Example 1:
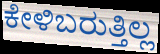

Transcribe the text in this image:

ಕೇಳಿಬರುತ್ತಿಲ್ಲ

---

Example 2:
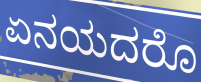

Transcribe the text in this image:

ಏನಯದರೊ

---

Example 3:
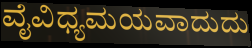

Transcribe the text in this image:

ವೈವಿಧ್ಯಮಯವಾದುದು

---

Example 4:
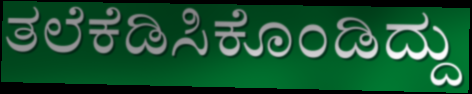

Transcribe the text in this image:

ತಲೆಕೆಡಿಸಿಕೊಂಡಿದ್ದು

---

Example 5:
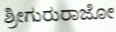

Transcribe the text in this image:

ಶ್ರೀಗುರುರಾಜೋ